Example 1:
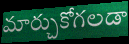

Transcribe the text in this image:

మార్చుకోగలడా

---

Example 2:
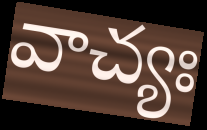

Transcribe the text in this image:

వాచ్యః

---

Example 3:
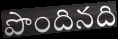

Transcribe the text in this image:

పొందినది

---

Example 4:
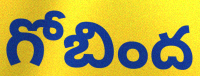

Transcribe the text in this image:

గోబింద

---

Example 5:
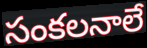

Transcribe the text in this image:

సంకలనాలే